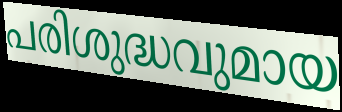
പരിശുദ്ധവുമായ